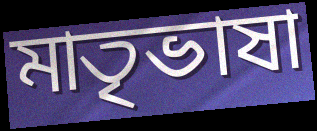
মাতৃভাষা